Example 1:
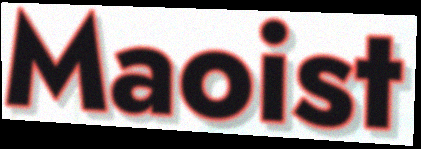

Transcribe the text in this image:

Maoist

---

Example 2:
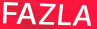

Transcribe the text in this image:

FAZLA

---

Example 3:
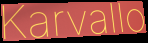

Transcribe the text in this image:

Karvallo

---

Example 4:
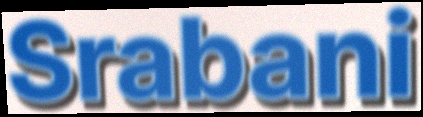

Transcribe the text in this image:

Srabani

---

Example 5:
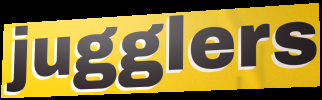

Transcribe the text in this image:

jugglers